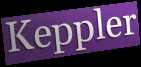
Keppler